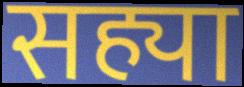
सह्या